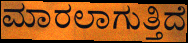
ಮಾರಲಾಗುತ್ತಿದೆ